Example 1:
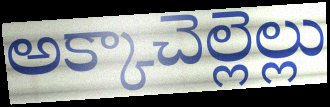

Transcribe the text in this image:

అక్కాచెల్లెల్లు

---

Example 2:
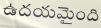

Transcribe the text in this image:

ఉదయమైంది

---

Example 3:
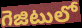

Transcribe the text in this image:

గెజిటులో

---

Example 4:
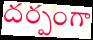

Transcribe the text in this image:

దర్పంగా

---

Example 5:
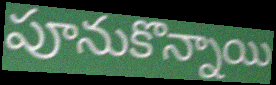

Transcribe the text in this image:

పూనుకొన్నాయి